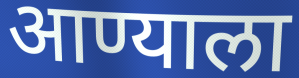
आण्याला